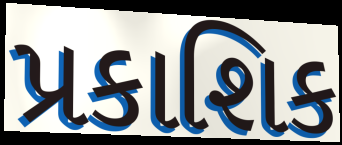
પ્રકાશિક